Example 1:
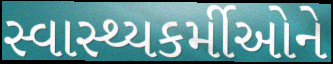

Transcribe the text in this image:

સ્વાસ્થ્યકર્મીઓને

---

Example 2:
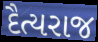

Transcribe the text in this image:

દૈત્યરાજ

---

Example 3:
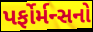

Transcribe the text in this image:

પર્ફોર્મન્સનો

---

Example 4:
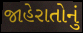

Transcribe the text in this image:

જાહેરાતોનું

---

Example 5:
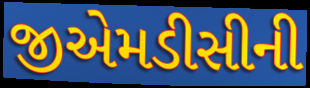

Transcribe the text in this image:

જીએમડીસીની